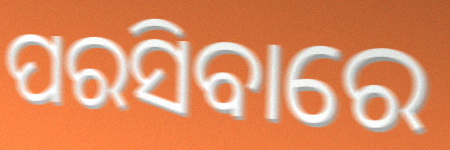
ପରସିବାରେ